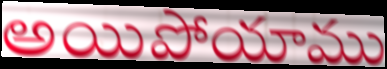
అయిపోయాము